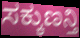
ಸಕ್ಕುಣನ್ತಿ